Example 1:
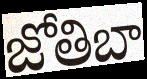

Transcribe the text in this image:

జోతిబా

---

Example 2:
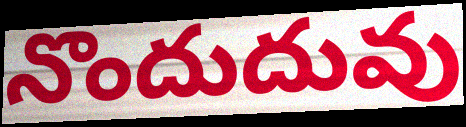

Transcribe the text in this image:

నొందుదువు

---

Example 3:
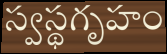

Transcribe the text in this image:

స్వస్థగృహం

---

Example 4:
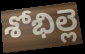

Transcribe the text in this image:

శోభిల్లె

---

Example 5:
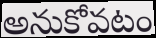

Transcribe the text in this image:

అనుకోవటం